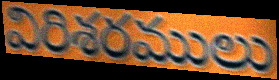
విరిశరములు